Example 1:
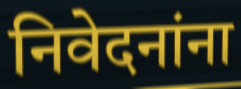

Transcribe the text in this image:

निवेदनांना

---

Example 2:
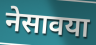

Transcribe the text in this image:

नेसावया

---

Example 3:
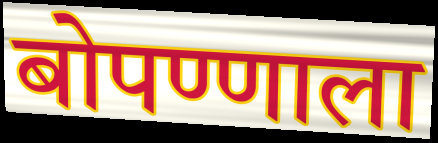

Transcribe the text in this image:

बोपण्णाला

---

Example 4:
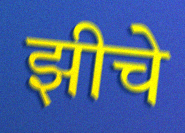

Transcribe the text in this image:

झीचे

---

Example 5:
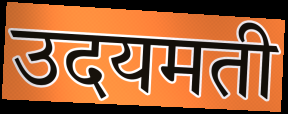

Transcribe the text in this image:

उदयमती